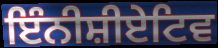
ਇੰਨੀਸ਼ੀਏਟਿਵ